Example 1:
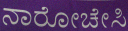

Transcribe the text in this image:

ನಾರೋಚೇಸಿ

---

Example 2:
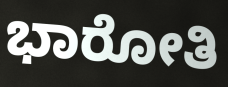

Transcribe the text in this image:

ಭಾರೋತಿ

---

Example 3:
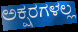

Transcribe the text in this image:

ಅಕ್ಷರಗಳಲ್ಲ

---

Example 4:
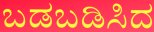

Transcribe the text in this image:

ಬಡಬಡಿಸಿದ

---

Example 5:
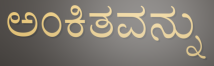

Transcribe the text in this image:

ಅಂಕಿತವನ್ನು